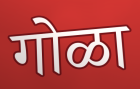
गोळा